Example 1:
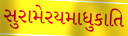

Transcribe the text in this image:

સુરામેરયમાધુકાતિ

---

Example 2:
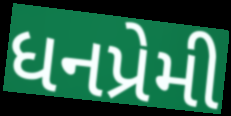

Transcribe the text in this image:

ધનપ્રેમી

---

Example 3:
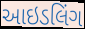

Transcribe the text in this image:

આઇડલિંગ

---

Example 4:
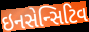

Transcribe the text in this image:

ઇનસેન્સિટિવ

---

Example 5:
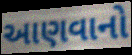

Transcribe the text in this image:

આણવાનો